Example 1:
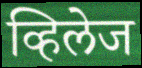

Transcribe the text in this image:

व्हिलेज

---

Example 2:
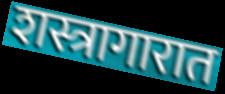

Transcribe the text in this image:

शस्त्रागारात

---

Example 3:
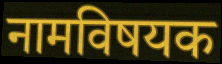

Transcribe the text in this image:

नामविषयक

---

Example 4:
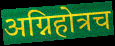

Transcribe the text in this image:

अग्निहोत्रच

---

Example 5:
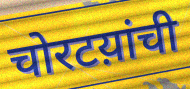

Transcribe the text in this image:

चोरटय़ांची